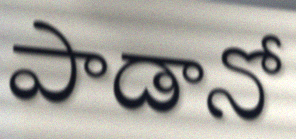
పాడానో